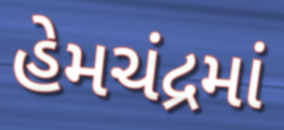
હેમચંદ્રમાં